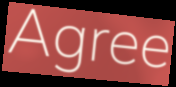
Agree